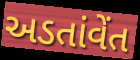
અડતાંવેંત